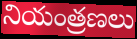
నియంత్రణలు